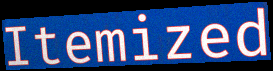
Itemized